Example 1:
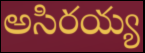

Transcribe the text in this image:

అసిరయ్య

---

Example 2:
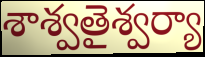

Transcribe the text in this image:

శాశ్వతైశ్వర్యా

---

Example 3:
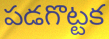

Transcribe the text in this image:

పడగొట్టక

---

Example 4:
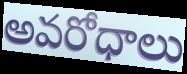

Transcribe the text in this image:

అవరోధాలు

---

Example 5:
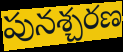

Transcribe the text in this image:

పునశ్చరణ